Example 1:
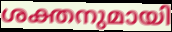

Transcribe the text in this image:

ശക്തനുമായി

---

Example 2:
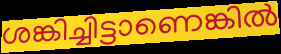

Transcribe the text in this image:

ശങ്കിച്ചിട്ടാണെങ്കിൽ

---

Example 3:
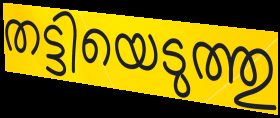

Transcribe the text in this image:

തട്ടിയെടുത്തു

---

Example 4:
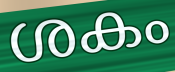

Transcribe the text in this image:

ശകം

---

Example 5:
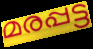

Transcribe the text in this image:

മരപ്പട്ട